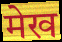
मेख